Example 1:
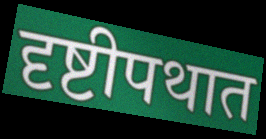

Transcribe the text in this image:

दृष्टीपथात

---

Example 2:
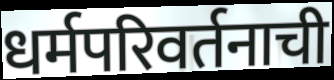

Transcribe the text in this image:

धर्मपरिवर्तनाची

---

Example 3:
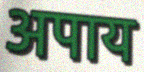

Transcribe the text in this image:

अपाय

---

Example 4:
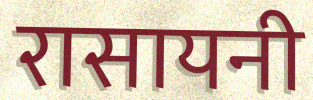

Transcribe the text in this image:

रासायनी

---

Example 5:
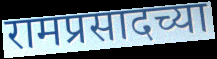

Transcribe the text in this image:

रामप्रसादच्या